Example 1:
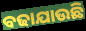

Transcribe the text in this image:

ବଢାଯାଉଛି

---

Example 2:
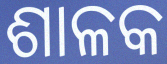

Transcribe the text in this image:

ଶାଳକ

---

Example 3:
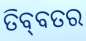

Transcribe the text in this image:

ତିବ୍‌ବତର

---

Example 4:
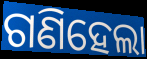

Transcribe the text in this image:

ଗଣିହେଲା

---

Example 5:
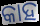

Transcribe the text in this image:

କାହ